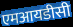
एमआयडीसी